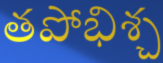
తపోభిశ్చ